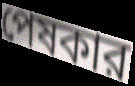
পেষকার